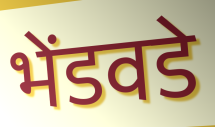
भेंडवडे